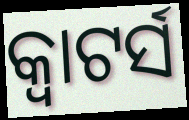
କ୍ଵାଟର୍ସ